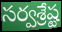
సర్వశ్రేష్ట